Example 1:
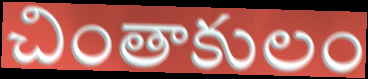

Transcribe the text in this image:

చింతాకులం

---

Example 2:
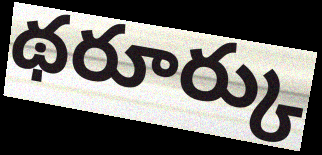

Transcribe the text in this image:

థరూర్కు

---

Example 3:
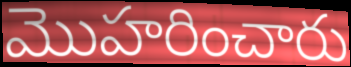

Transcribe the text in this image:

మొహరించారు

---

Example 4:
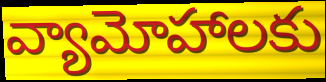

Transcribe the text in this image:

వ్యామోహాలకు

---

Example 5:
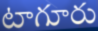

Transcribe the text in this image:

టాగూరు